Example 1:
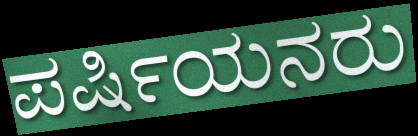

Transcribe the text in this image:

ಪರ್ಷಿಯನರು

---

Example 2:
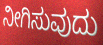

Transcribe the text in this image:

ನೀಗಿಸುವುದು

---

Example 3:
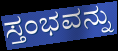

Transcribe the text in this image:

ಸ್ತಂಭವನ್ನು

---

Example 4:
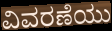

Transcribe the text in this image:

ವಿವರಣೆಯು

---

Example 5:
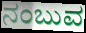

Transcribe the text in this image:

ನಂಬುವ